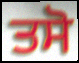
ਤਸੋ